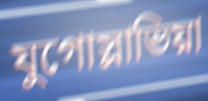
যুগোস্লাভিয়া